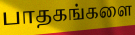
பாதகங்களை